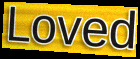
Loved